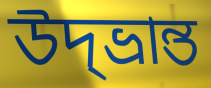
উদ্‌ভ্রান্ত